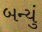
બન્યું